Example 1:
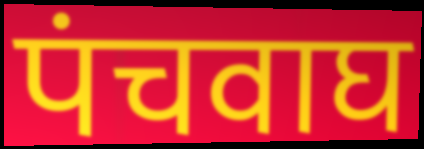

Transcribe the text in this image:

पंचवाघ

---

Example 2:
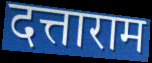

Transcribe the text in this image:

दत्ताराम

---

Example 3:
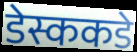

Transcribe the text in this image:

डेस्ककडे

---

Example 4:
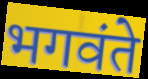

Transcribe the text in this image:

भगवंते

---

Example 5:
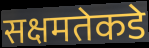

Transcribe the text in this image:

सक्षमतेकडे